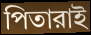
পিতারাই